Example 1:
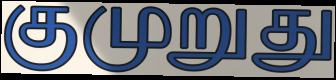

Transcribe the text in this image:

குமுறுது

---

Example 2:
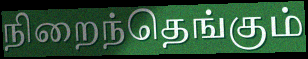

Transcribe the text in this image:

நிறைந்தெங்கும்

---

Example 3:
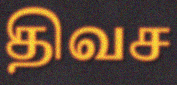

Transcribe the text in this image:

திவச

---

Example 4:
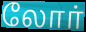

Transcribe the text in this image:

லோர்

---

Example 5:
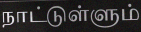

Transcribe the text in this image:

நாட்டுள்ளும்